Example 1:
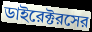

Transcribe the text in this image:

ডাইরেক্টরসের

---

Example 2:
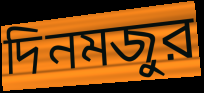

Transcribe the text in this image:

দিনমজুর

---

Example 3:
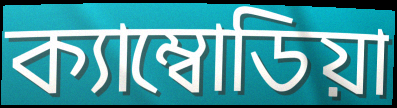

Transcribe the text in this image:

ক্যাম্বোডিয়া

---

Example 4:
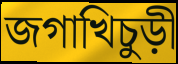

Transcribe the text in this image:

জগাখিচুড়ী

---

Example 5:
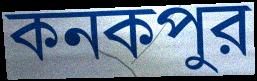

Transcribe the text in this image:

কনকপুর